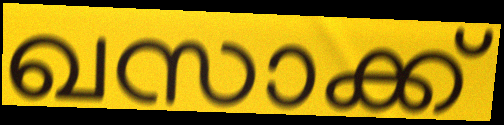
ഖസാക്ക്